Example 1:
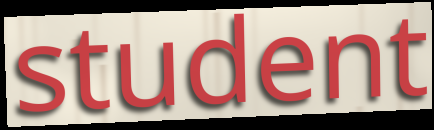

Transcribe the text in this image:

student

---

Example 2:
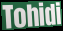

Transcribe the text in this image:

Tohidi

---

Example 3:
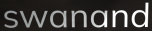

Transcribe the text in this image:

swanand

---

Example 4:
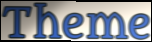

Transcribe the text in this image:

Theme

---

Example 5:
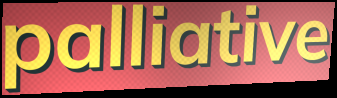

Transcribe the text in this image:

palliative